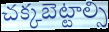
చక్కబెట్టాల్సి